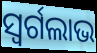
ସ୍ୱର୍ଗଲାଭ